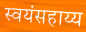
स्वयंसहाय्य